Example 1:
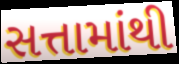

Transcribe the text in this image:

સત્તામાંથી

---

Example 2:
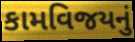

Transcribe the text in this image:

કામવિજયનું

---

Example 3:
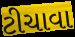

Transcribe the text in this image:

ટીચાવા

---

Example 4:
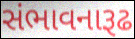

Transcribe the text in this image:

સંભાવનારૂઢ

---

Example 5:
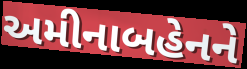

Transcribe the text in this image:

અમીનાબહેનને